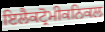
ਇਲੈਕਟ੍ਰੋਮੀਕਨਿਕਲ